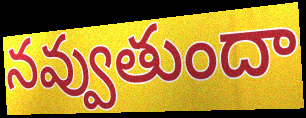
నవ్వుతుందా